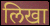
लिखा